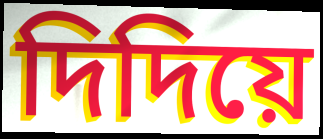
দিদিয়ে